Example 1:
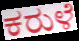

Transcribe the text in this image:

ಕರುಳೆ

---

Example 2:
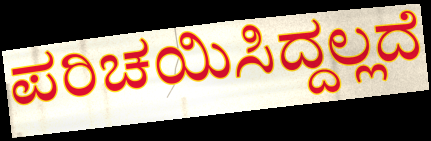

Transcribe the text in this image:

ಪರಿಚಯಿಸಿದ್ದಲ್ಲದೆ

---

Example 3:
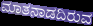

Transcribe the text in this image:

ಮಾತನಾಡದಿರುವ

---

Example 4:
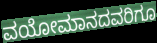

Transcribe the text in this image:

ವಯೋಮಾನದವರಿಗೂ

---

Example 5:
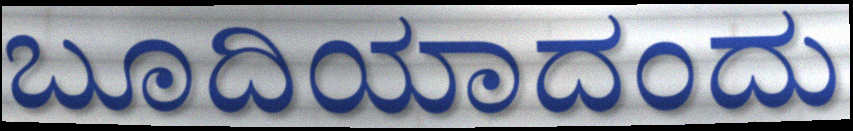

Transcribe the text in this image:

ಬೂದಿಯಾದಂದು